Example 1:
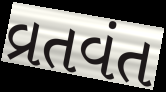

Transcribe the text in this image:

વ્રતવંત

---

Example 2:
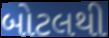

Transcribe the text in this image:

બોટલથી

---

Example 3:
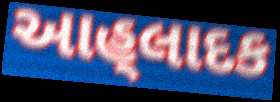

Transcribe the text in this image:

આહ્‌લાદક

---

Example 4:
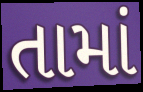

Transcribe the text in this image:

તામાં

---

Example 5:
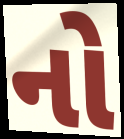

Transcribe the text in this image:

નો